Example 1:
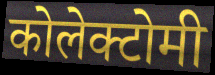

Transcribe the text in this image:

कोलेक्टोमी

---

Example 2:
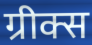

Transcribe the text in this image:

ग्रीक्स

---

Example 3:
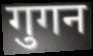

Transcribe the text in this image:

गुगन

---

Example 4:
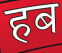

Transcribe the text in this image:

हब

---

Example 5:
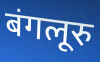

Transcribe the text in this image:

बंगलूरु